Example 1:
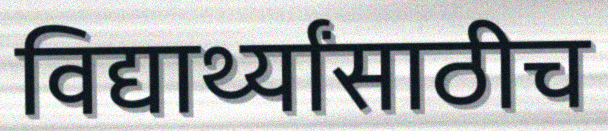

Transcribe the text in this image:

विद्यार्थ्यांसाठीच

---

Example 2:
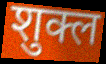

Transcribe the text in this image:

शुक्‍ल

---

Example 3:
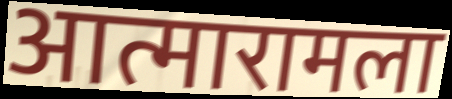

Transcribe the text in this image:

आत्मारामला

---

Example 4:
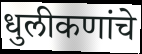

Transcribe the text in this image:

धुलीकणांचे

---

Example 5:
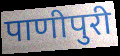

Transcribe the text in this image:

पाणीपुरी